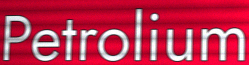
Petrolium